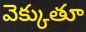
వెక్కుతూ